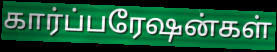
கார்ப்பரேஷன்கள்